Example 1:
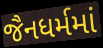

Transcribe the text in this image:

જૈનધર્મમાં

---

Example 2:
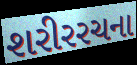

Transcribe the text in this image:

શરીરરચના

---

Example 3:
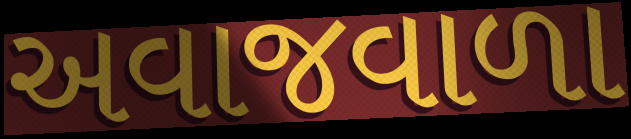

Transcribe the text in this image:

અવાજવાળા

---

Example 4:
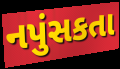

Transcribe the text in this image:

નપુંસકતા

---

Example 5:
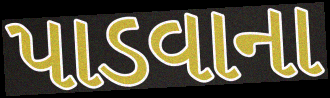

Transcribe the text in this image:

પાડવાના